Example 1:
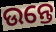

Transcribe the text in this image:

ଉନ୍ତେ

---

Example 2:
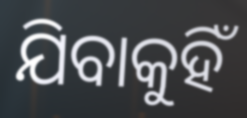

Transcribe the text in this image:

ଯିବାକୁହିଁ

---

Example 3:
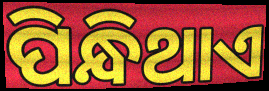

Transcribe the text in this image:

ପିନ୍ଧିଥାଏ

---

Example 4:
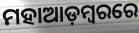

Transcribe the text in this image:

ମହାଆଡ଼ମ୍ୱରରେ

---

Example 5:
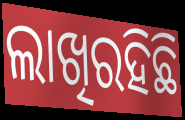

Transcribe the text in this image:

ଲାଖିରହିଛି